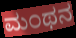
ಮಂಥನ